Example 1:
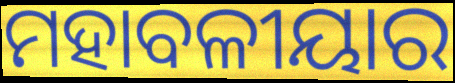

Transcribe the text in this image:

ମହାବଳୀୟାର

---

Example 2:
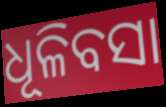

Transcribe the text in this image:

ଧୂଳିବସା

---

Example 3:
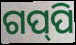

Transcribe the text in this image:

ଗପ୍‌ପି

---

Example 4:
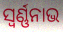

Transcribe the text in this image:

ସ୍ବର୍ଣ୍ଣନାଭ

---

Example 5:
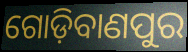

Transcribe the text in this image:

ଗୋଡ଼ିବାଣପୁର